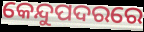
କେନ୍ଦୁପଦରରେ